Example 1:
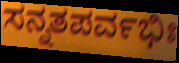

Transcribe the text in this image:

ಸನ್ನತಪರ್ವಭಿಃ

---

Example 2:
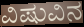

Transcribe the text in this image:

ವಿಷುವಿನ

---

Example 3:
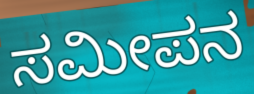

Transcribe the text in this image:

ಸಮೀಪನ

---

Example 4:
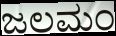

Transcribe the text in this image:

ಜಲಮಂ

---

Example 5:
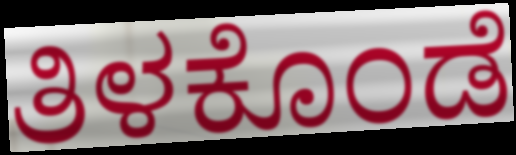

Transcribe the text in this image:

ತಿಳಕೊಂಡೆ